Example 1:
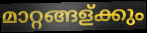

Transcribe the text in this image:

മാറ്റങ്ങള്ക്കും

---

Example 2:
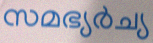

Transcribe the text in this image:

സമഭ്യർച്യ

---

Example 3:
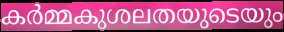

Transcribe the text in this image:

കർമ്മകുശലതയുടെയും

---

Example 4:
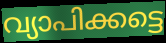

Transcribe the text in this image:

വ്യാപിക്കട്ടെ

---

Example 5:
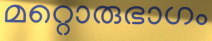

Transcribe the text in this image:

മറ്റൊരുഭാഗം